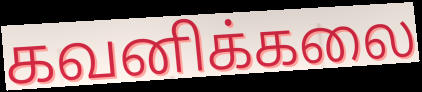
கவனிக்கலை